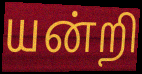
யன்றி